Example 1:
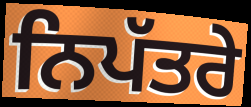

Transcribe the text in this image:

ਨਿਪੱਤਰੇ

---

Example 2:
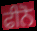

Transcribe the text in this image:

ਫੀਨੋ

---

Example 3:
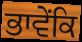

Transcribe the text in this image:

ਭਾਵੇਂਕਿ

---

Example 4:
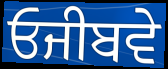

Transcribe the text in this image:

ਓਜੀਬਵੇ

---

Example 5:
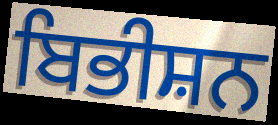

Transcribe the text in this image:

ਬਿਭੀਸ਼ਨ